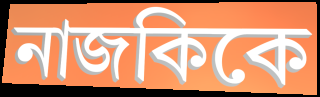
নাজকিকে